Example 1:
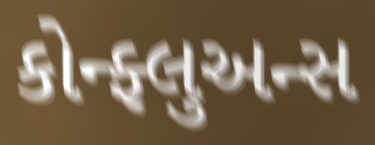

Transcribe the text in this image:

કોન્ફ્લુઅન્સ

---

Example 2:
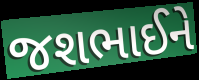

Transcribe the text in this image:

જશભાઈને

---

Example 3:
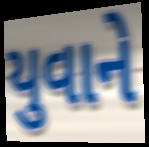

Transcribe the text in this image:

યુવાને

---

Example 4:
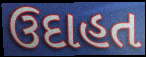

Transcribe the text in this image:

ઉદાહત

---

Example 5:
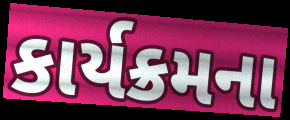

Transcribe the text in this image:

કાર્યક્રમના